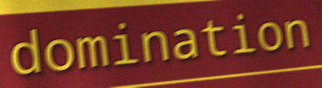
domination